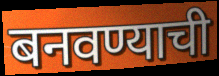
बनवण्याची